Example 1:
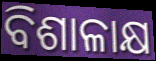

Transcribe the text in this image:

ବିଶାଳାକ୍ଷ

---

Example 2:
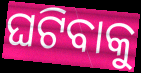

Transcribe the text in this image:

ଘଟିବାକୁ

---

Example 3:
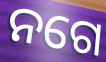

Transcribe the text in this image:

ନଗେ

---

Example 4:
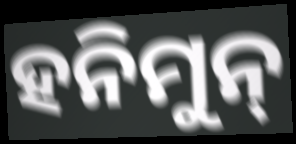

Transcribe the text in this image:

ହନିମୁନ୍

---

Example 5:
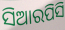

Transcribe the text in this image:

ସିଆରପିସି